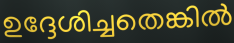
ഉദ്ദേശിച്ചതെങ്കിൽ